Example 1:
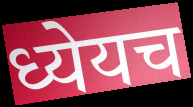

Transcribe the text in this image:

ध्येयच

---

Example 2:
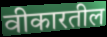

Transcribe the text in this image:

वीकारतील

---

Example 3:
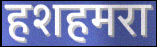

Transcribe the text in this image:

हशहमरा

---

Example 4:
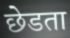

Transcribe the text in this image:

छेडता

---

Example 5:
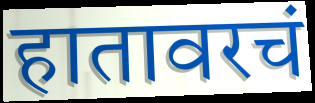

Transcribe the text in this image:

हातावरचं